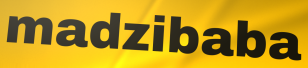
madzibaba